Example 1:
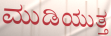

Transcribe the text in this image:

ಮುಡಿಯುತ್ತ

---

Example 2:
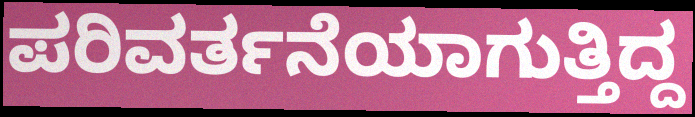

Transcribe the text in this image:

ಪರಿವರ್ತನೆಯಾಗುತ್ತಿದ್ದ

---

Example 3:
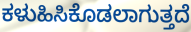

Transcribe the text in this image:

ಕಳುಹಿಸಿಕೊಡಲಾಗುತ್ತದೆ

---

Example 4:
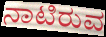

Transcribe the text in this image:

ನಾಟಿರುವ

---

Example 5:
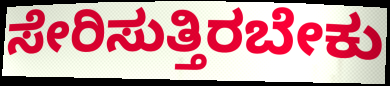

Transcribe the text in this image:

ಸೇರಿಸುತ್ತಿರಬೇಕು